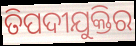
ତିପଦୀଯୁକ୍ତିର